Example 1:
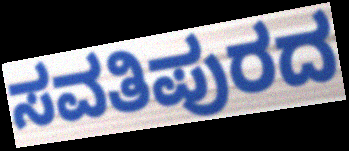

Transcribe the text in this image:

ಸವತಿಪುರದ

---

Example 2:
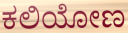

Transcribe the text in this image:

ಕಲಿಯೋಣ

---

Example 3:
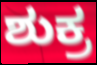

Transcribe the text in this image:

ಶುಕ್ರ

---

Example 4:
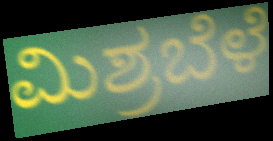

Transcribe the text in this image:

ಮಿಶ್ರಬೆಳೆ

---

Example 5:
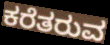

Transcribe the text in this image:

ಕರೆತರುವ